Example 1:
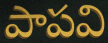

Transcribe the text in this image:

పాపవి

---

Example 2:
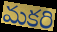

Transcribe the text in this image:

మకరి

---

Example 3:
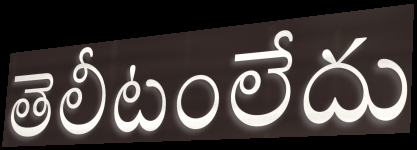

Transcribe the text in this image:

తెలీటంలేదు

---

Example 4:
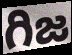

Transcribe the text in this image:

గిజ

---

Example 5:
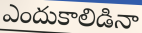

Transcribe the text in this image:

ఎందుకాలిడినా